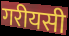
गरीयसी